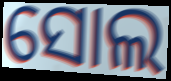
ସୋଲ